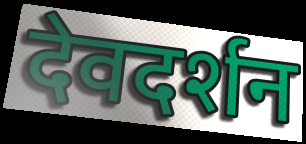
देवदर्शन